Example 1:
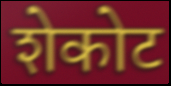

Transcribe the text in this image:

शेकोट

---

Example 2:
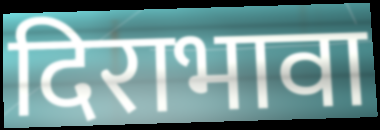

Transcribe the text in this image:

दिराभावा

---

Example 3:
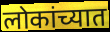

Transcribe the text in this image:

लोकांच्यात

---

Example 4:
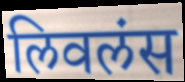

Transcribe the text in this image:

लिवलंस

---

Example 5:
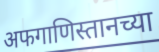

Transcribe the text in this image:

अफगाणिस्तानच्या